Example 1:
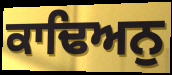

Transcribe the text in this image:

ਕਾਢਿਅਨੁ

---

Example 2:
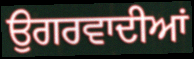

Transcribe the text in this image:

ਉਗਰਵਾਦੀਆਂ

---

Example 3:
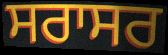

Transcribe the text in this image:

ਸਰਾਸਰ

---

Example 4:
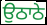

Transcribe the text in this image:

ਉਠਾਠੇ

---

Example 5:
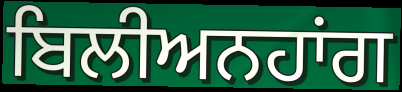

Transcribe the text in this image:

ਬਿਲੀਅਨਹਾਂਗ